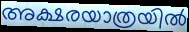
അക്ഷരയാത്രയിൽ